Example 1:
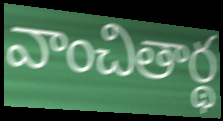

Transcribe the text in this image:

వాంచితార్థ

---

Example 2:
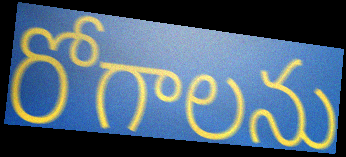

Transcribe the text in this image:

రోగాలను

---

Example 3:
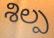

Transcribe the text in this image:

శిల్ప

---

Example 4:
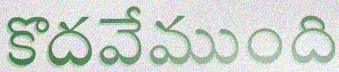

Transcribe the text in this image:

కొదవేముంది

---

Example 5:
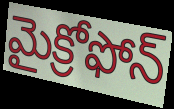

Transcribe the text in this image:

మైక్రోఫోన్